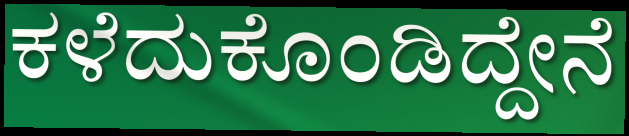
ಕಳೆದುಕೊಂಡಿದ್ದೇನೆ